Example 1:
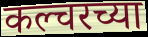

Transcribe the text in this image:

कल्चरच्या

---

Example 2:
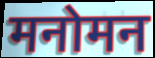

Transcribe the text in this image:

मनोमन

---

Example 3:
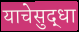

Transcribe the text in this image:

याचेसुद्धा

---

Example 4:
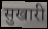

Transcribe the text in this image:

सुखारी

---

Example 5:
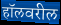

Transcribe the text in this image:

हॉलवरील